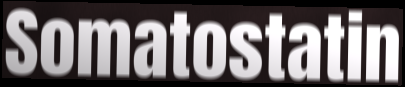
Somatostatin